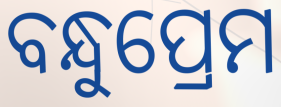
ବନ୍ଧୁପ୍ରେମ